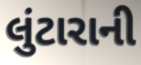
લુંટારાની